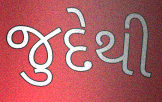
જુદેથી